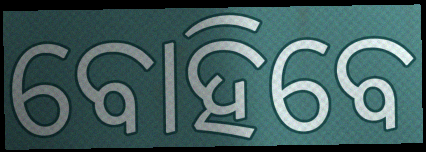
ବୋହିବେ